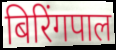
बिरिंगपाल